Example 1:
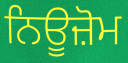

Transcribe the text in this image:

ਨਿਊਜ਼ੋਮ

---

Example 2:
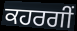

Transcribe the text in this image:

ਕਹਰਗੀਂ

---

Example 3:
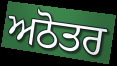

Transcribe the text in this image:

ਅਠੋਤਰ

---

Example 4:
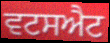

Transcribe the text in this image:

ਵਟਸਐਟ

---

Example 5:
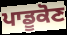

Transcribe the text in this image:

ਪਾਡੂਕੋਣ